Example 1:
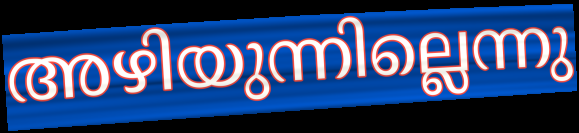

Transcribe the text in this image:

അഴിയുന്നില്ലെന്നു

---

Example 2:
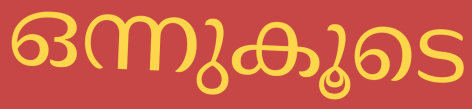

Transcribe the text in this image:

ഒന്നുകൂടെ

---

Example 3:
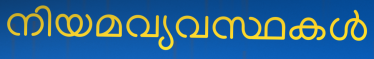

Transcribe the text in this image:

നിയമവ്യവസ്ഥകൾ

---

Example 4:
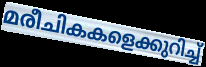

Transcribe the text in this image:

മരീചികകളെക്കുറിച്ച്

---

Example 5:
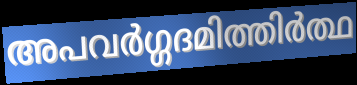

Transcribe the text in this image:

അപവർഗ്ഗദമിത്തിർത്ഥ